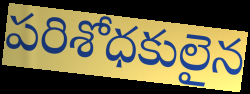
పరిశోధకులైన